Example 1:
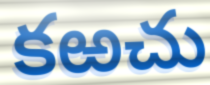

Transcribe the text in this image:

కఱచు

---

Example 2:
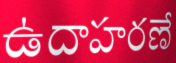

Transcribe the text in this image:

ఉదాహరణే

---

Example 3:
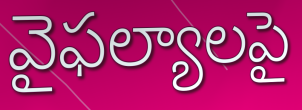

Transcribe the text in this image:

వైఫల్యాలపై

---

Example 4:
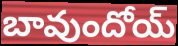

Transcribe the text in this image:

బావుందోయ్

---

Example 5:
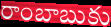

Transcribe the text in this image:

రాంబాబుకు